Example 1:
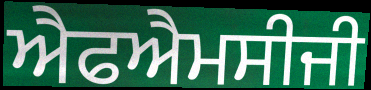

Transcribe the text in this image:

ਐਫਐਮਸੀਜੀ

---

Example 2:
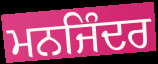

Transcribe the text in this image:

ਮਨਜਿੰਦਰ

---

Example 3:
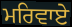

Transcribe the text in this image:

ਮਰਿਵਾਏ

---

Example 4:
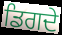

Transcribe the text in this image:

ਡਿਗਦੇ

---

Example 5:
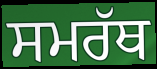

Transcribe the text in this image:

ਸਮਰੱਥ